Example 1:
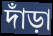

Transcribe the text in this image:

দাঁড়া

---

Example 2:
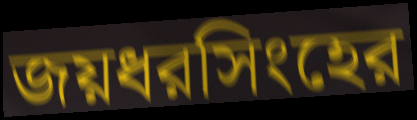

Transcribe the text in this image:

জয়ধরসিংহের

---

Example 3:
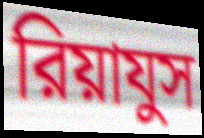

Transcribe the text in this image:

রিয়াযুস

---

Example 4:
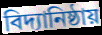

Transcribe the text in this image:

বিদ্যানিষ্ঠায়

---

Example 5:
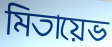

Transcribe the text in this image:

মিতায়েভ